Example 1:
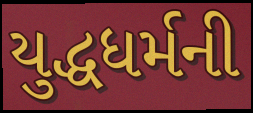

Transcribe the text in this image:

યુદ્ધધર્મની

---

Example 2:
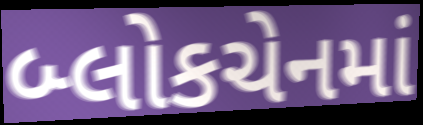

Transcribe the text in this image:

બ્લોકચેનમાં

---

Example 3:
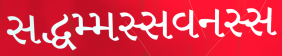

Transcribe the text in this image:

સદ્ધમ્મસ્સવનસ્સ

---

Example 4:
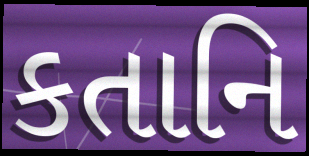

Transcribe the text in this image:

કતાનિ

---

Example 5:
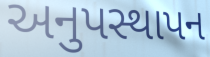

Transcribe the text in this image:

અનુપસ્થાપન